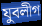
যুবলীগ